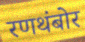
रणथंबोर